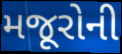
મજૂરોની